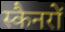
स्कैनरों